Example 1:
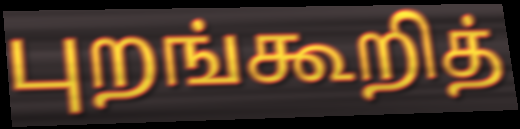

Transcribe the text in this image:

புறங்கூறித்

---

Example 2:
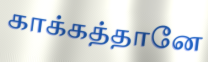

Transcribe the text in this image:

காக்கத்தானே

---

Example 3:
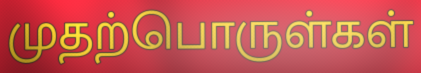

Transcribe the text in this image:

முதற்பொருள்கள்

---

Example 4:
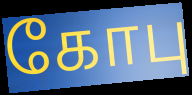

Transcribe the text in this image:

கோபு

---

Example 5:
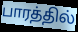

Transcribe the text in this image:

பாரத்தில்